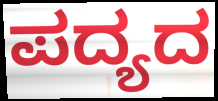
ಪದ್ಯದ